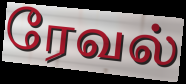
ரேவல்